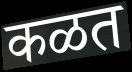
कळत